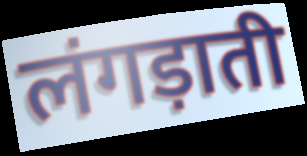
लंगड़ाती